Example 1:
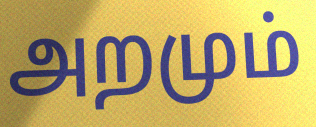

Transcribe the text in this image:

அறமும்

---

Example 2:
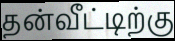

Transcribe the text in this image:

தன்வீட்டிற்கு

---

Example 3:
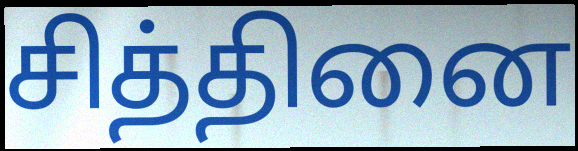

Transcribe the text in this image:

சித்தினை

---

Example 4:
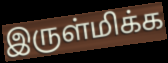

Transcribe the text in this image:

இருள்மிக்க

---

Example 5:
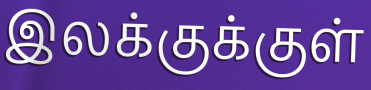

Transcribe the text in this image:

இலக்குக்குள்